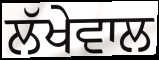
ਲੱਖੇਵਾਲ